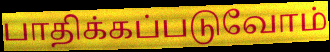
பாதிக்கப்படுவோம்